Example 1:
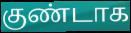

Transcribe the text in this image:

குண்டாக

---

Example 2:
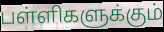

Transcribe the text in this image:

பள்ளிகளுக்கும்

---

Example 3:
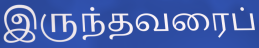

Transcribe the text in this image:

இருந்தவரைப்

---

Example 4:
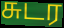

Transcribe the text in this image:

சுடர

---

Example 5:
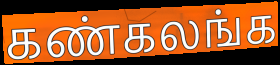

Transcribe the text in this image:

கண்கலங்க